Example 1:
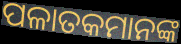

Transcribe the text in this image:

ପଳାତକମାନଙ୍କ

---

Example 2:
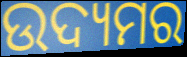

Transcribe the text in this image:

ଉଦ୍ୟମର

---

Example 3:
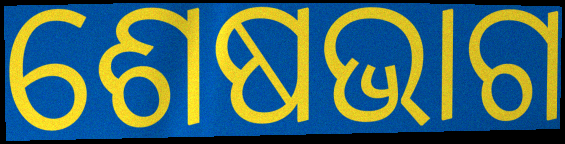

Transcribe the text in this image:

ଶେଷଭାଗ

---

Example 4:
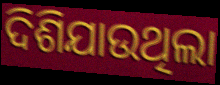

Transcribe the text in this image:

ଦିଶିଯାଉଥିଲା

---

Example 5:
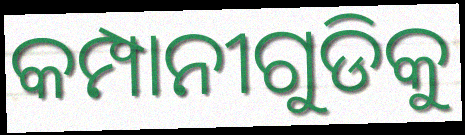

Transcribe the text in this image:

କମ୍ପାନୀଗୁଡିକୁ